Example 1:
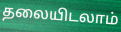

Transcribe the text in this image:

தலையிடலாம்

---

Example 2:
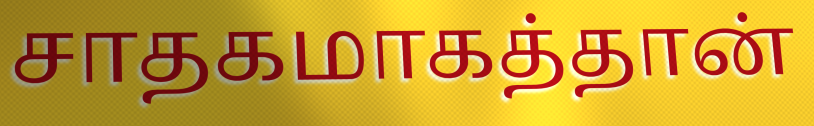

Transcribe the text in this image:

சாதகமாகத்தான்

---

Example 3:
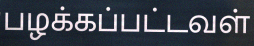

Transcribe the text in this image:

பழக்கப்பட்டவள்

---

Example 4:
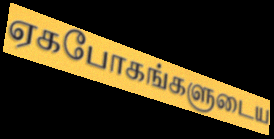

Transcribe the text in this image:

ஏகபோகங்களுடைய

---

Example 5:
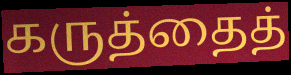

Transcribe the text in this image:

கருத்தைத்